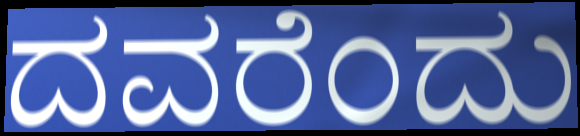
ದವರೆಂದು